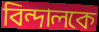
বিন্দালকে